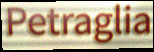
Petraglia